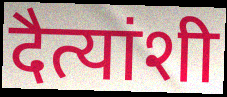
दैत्यांशी